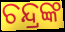
ଚନ୍ଦ୍ରଙ୍କ